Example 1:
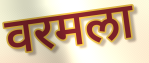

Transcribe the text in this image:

वरमला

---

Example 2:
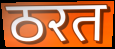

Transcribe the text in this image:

ठरत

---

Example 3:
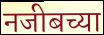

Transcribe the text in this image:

नजीबच्या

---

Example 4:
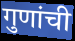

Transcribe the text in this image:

गुणांची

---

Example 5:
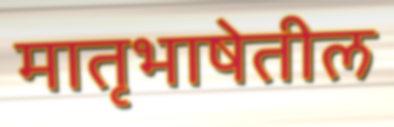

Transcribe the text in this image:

मातृभाषेतील